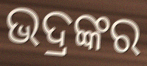
ଭଦ୍ରଙ୍କର